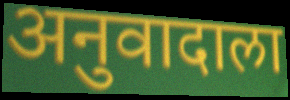
अनुवादाला